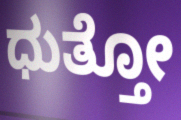
ಧುತ್ತೋ